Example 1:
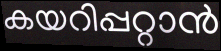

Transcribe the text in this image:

കയറിപ്പറ്റാൻ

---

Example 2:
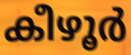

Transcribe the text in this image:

കീഴൂർ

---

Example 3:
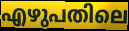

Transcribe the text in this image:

എഴുപതിലെ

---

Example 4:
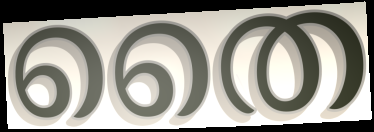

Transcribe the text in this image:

തൈ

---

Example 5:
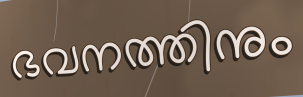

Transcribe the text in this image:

ഭവനത്തിനും